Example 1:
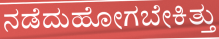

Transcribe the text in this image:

ನಡೆದುಹೋಗಬೇಕಿತ್ತು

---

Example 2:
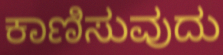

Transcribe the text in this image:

ಕಾಣಿಸುವುದು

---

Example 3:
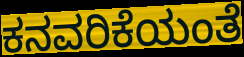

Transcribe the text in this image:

ಕನವರಿಕೆಯಂತೆ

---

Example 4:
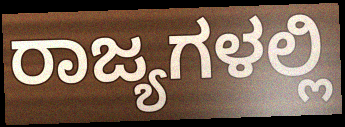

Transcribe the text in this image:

ರಾಜ್ಯಗಳಲ್ಲಿ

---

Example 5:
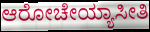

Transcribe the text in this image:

ಆರೋಚೇಯ್ಯಾಸೀತಿ